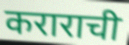
कराराची